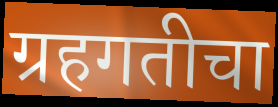
ग्रहगतीचा